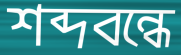
শব্দবন্ধে